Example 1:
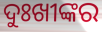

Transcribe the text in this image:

ଦୁଃଖୀଙ୍କର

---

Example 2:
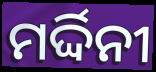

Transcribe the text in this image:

ମର୍ଦ୍ଦିନୀ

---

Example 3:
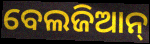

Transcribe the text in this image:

ବେଲଜିଆନ୍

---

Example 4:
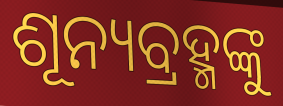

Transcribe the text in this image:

ଶୂନ୍ୟବ୍ରହ୍ମଙ୍କୁ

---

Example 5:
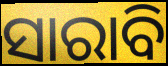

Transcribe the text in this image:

ସାରାବି